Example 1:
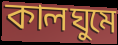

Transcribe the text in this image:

কালঘুমে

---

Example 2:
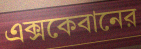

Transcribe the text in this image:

এক্সকেবানের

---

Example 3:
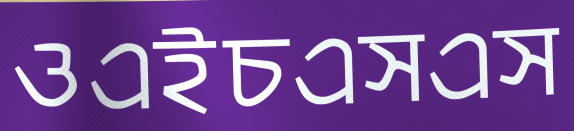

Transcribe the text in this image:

ওএইচএসএস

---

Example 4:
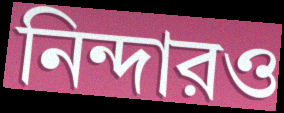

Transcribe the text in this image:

নিন্দারও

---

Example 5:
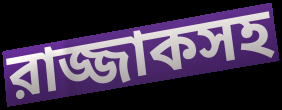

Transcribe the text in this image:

রাজ্জাকসহ